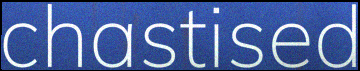
chastised